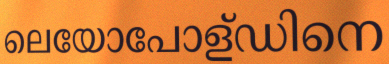
ലെയോപോള്ഡിനെ